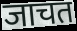
जाचत